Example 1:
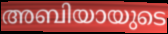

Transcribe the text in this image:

അബിയായുടെ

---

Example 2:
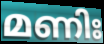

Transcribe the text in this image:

മണിഃ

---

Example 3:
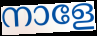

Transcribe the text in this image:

നാളേ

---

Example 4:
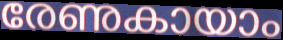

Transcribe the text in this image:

രേണുകായാം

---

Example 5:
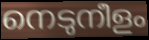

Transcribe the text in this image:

നെടുനീളം